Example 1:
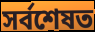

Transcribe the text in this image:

সৰ্বশেষত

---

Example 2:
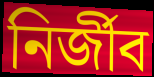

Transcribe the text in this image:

নিৰ্জীব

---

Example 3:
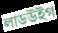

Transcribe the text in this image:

লাডউইগ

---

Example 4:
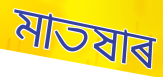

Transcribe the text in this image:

মাতষাৰ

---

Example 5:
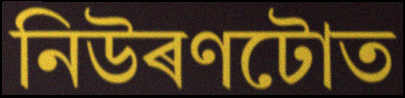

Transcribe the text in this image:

নিউৰণটোত